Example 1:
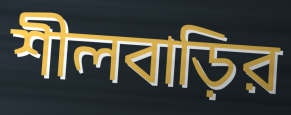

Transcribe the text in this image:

শীলবাড়ির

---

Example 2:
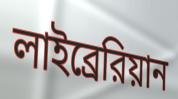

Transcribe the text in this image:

লাইব্রেরিয়ান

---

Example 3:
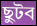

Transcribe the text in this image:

ছুটব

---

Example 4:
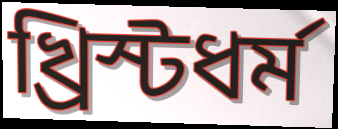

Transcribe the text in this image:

খ্রিস্টধর্ম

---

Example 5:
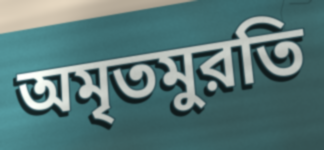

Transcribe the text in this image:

অমৃতমুরতি